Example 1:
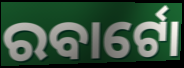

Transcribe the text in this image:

ରବାର୍ଟୋ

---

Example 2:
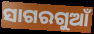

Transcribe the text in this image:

ସାଗରଗୁଆଁ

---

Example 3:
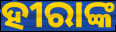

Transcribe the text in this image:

ହୀରାଙ୍କ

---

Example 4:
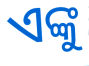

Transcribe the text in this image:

ଏଙ୍କୁ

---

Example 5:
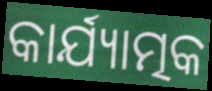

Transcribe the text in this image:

କାର୍ଯ୍ୟାତ୍ମକ